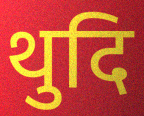
थुदि